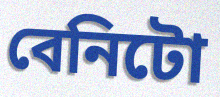
বেনিটো